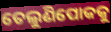
ତେଲୁଣିପୋକକୁ